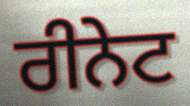
ਰੀਨੇਟ